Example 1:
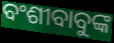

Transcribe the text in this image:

ବଂଶୀବାବୁଙ୍କ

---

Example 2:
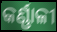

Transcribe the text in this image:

କର୍ଣ୍ଣାଳୀ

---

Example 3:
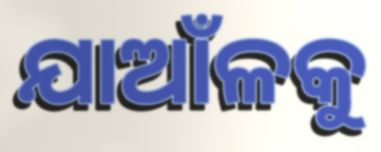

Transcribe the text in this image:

ଯାଆଁଳକୁ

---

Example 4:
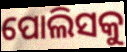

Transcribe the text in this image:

ପୋଲିସକୁ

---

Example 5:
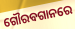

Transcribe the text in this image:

ଗୌରବଗାନରେ